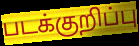
படக்குறிப்பு